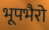
भूपभैरो